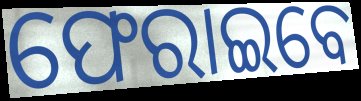
ଫେରାଇବେ